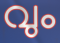
വും